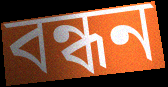
বন্ধন